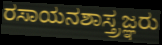
ರಸಾಯನಶಾಸ್ತ್ರಜ್ಞರು